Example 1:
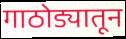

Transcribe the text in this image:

गाठोड्यातून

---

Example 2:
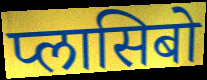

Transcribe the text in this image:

प्लासिबो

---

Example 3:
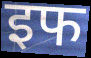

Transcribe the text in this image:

इफ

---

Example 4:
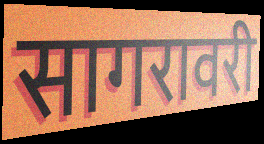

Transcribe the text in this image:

सागरावरी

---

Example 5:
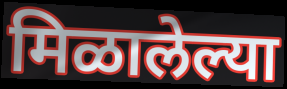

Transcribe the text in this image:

मिळालेल्या